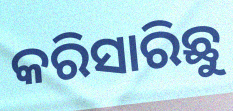
କରିସାରିଛୁ